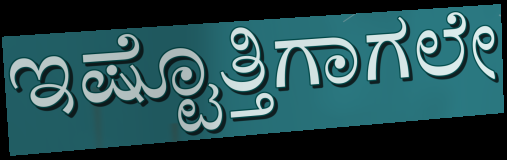
ಇಷ್ಟೊತ್ತಿಗಾಗಲೇ